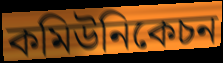
কমিউনিকেচন